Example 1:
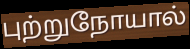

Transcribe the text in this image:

புற்றுநோயால்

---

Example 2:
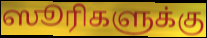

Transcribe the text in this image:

ஸூரிகளுக்கு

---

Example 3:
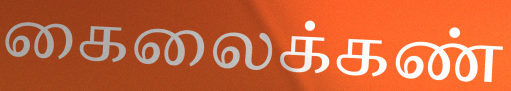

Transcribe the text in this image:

கைலைக்கண்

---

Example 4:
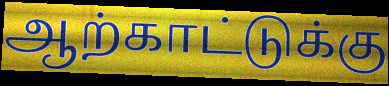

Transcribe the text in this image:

ஆற்காட்டுக்கு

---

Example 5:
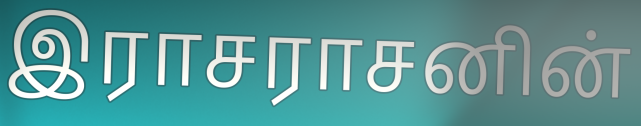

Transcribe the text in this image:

இராசராசனின்